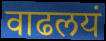
वाढलयं